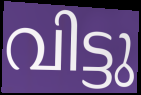
വിട്ടു